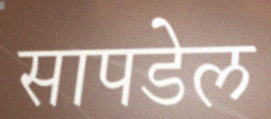
सापडेल